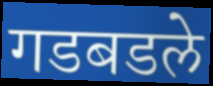
गडबडले